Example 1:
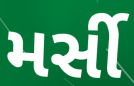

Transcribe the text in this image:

મર્સી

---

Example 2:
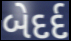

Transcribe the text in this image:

બેદર્દ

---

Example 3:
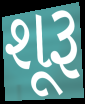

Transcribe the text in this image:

શૂરૂ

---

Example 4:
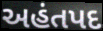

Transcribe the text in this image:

અહંતપદ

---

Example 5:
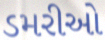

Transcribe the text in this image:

ડમરીઓ